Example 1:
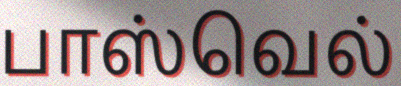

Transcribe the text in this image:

பாஸ்வெல்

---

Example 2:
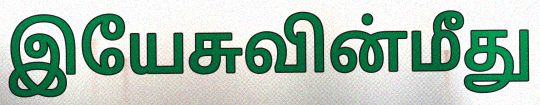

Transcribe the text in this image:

இயேசுவின்மீது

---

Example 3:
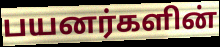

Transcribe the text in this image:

பயனர்களின்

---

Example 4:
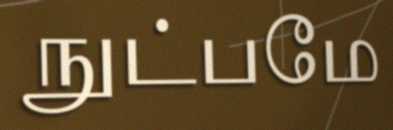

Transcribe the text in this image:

நுட்பமே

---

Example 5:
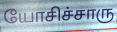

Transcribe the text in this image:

யோசிச்சாரு